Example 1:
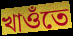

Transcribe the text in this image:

খাওঁতে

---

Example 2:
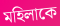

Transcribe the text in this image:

মহিলাকে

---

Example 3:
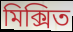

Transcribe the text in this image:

মিক্সিত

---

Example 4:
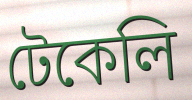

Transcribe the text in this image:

টেকেলি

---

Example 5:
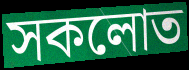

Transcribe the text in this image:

সকলোত